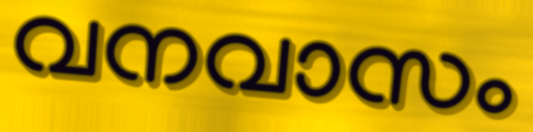
വനവാസം